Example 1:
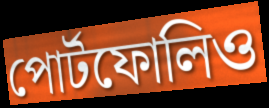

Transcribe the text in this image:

পোর্টফোলিও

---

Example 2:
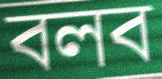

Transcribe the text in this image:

বলব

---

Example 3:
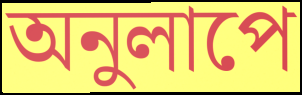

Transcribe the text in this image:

অনুলাপে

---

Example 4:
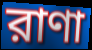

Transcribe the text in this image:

রাণা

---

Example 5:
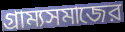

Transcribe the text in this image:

গ্রাম্যসমাজের